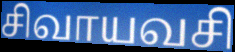
சிவாயவசி